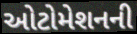
ઓટોમેશનની